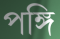
পঙ্গি